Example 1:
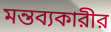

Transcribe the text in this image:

মন্তব্যকারীর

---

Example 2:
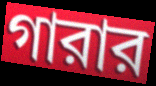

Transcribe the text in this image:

গারার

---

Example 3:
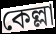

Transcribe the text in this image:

কেল্লা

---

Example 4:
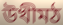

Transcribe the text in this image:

উখীমঠ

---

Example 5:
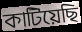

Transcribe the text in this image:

কাটিয়েছি